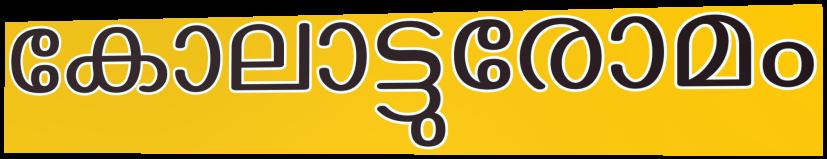
കോലാട്ടുരോമം